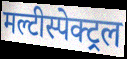
मल्टीस्पेक्ट्रल